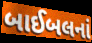
બાઈબલનાં